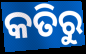
କତିରୁ